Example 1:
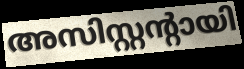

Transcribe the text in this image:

അസിസ്റ്റന്റായി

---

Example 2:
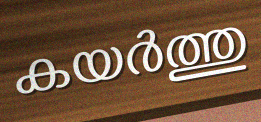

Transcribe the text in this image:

കയർത്തു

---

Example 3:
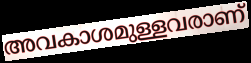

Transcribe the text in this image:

അവകാശമുള്ളവരാണ്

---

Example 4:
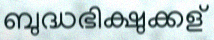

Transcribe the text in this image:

ബുദ്ധഭിക്ഷുക്കള്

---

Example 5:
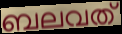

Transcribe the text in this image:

ബലവത്